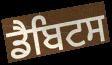
ਡੈਬਿਟਸ